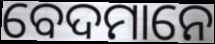
ବେଦମାନେ